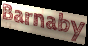
Barnaby